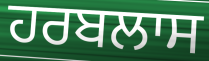
ਹਰਬਲਾਸ